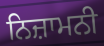
ਨਿਜ਼ਾਮਨੀ